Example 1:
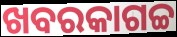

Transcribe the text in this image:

ଖବରକାଗଚ୍ଚ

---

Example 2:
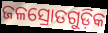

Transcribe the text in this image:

ଜଳସ୍ରୋତଗୁଡ଼ିକ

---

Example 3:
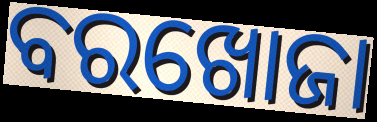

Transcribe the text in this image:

ବରଖୋଜା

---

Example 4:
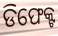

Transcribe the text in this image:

ଡିଫେକ୍ଟ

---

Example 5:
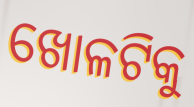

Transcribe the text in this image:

ଖୋଳଟିକୁ